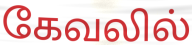
கேவலில்